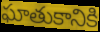
ఘాతుకానికి